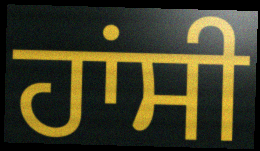
ਹਾਂਸੀ